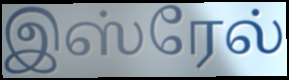
இஸ்ரேல்